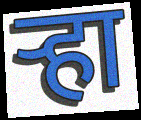
ऱ्हा